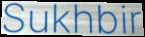
Sukhbir